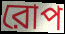
রোপ